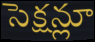
సెక్షన్లూ